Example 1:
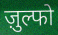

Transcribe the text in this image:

ज़ुल्फो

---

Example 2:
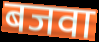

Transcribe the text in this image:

बजवा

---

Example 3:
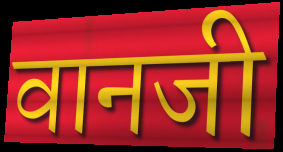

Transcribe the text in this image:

वानजी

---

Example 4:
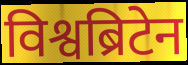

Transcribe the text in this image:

विश्वब्रिटेन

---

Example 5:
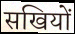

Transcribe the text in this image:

सखियों